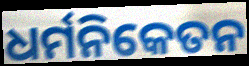
ଧର୍ମନିକେତନ